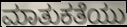
ಮಾತುಕತೆಯು